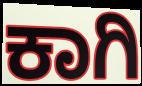
ಕಾಗಿ